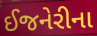
ઈજનેરીના